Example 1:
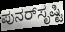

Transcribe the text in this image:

ಪುನರ್‌ಸೃಷ್ಟಿ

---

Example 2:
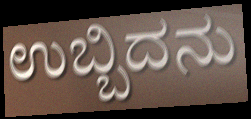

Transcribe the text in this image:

ಉಬ್ಬಿದನು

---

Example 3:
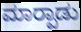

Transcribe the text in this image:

ಮಾರ‍್ಪಾಡು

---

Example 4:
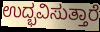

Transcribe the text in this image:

ಉದ್ಭವಿಸುತ್ತಾರೆ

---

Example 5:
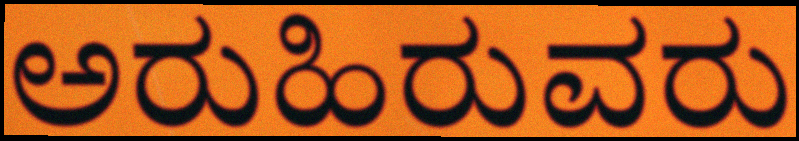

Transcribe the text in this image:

ಅರುಹಿರುವರು